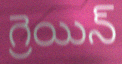
గ్రెయిన్